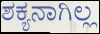
ಶಕ್ಯನಾಗಿಲ್ಲ